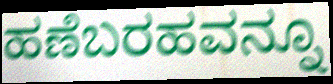
ಹಣೆಬರಹವನ್ನೂ